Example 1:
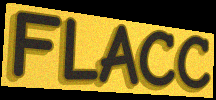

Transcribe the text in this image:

FLACC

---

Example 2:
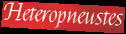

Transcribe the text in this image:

Heteropneustes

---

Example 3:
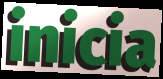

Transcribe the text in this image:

inicia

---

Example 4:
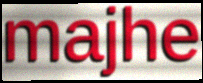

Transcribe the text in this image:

majhe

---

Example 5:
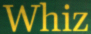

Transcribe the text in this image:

Whiz